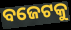
ବଜେଟକୁ